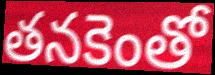
తనకెంతో